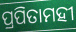
ପ୍ରପିତାମହୀ